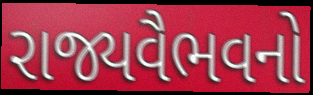
રાજ્યવૈભવનો